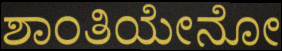
ಶಾಂತಿಯೇನೋ